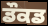
ਡੌਕਡ